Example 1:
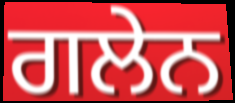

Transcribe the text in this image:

ਗਲੇਨ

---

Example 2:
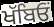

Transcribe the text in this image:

ਖੱਬਿਓਂ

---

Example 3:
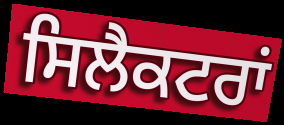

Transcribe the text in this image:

ਸਿਲੈਕਟਰਾਂ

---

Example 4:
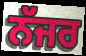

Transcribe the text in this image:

ਨੱਜਰ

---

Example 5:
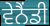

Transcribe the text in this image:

ਵੇਨੈਂਡੀ